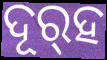
ଦୂର୍‌ହ